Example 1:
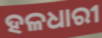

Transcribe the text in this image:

ହଳଧାରୀ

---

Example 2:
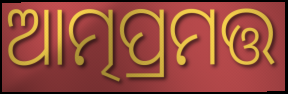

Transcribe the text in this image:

ଆତ୍ମପ୍ରମତ୍ତ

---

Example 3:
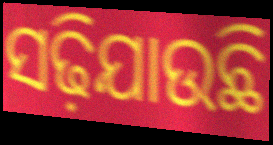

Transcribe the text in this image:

ସଢ଼ିଯାଉଛି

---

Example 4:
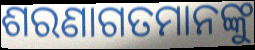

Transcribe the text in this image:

ଶରଣାଗତମାନଙ୍କୁ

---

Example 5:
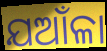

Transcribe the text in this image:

ଯଆଁଳା